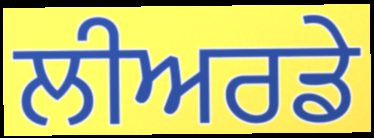
ਲੀਅਰਡੇ